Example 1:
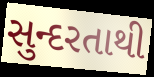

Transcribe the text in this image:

સુન્દરતાથી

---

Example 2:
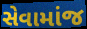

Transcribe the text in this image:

સેવામાંજ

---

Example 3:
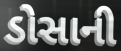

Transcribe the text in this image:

ડોસાની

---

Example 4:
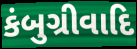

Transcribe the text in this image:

કંબુગ્રીવાદિ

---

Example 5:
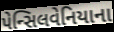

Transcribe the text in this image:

પેન્સિલવેનિયાના